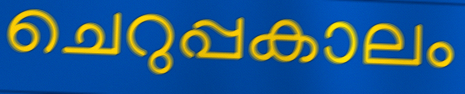
ചെറുപ്പകാലം